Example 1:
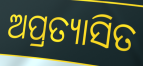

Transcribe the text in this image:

ଅପ୍ରତ୍ୟାସିତ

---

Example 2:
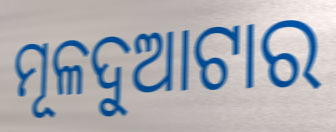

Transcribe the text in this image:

ମୂଳଦୁଆଟାର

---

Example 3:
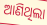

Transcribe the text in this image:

ଆଣିଥିଲା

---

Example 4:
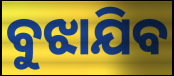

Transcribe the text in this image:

ବୁଝାଯିବ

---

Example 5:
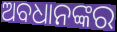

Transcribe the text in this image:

ଅବଧାନଙ୍କର